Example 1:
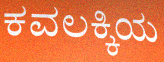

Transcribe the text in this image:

ಕವಲಕ್ಕಿಯ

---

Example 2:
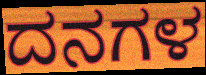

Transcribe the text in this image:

ದನಗಳ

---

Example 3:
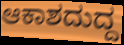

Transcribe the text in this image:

ಆಕಾಶದುದ್ದ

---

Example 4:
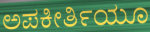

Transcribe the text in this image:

ಅಪಕೀರ್ತಿಯೂ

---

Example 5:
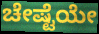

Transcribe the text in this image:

ಚೇಷ್ಟೆಯೇ